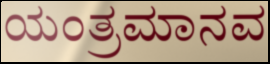
ಯಂತ್ರಮಾನವ